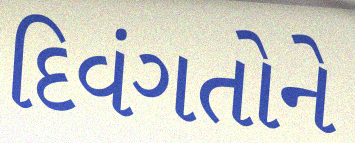
દિવંગતોને